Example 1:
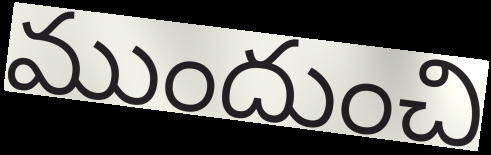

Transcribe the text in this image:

ముందుంచి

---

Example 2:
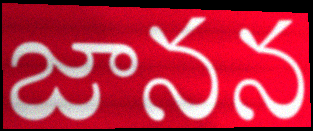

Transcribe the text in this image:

జానన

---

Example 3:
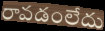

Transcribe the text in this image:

రావడంలేదు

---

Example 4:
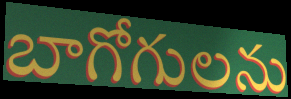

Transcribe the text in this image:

బాగోగులను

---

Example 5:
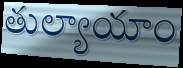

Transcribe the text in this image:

తుల్యాయాం